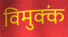
विमुक्कं